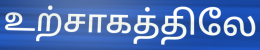
உற்சாகத்திலே